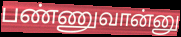
பண்ணுவான்னு